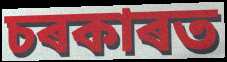
চৰকাৰত